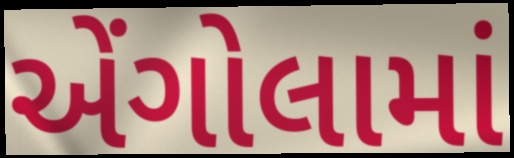
એંગોલામાં